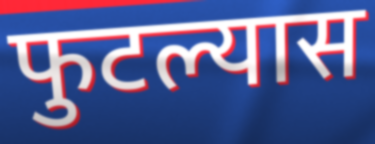
फुटल्यास